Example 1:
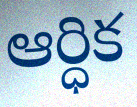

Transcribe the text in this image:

ఆర్ధిక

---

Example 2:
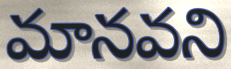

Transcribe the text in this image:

మానవని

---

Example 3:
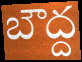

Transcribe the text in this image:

బౌద్ద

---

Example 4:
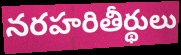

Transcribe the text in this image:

నరహరితీర్థులు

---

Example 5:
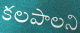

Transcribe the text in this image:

కలపాలని